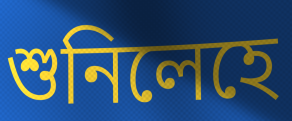
শুনিলেহে